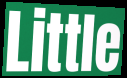
Little